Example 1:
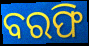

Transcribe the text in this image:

ବରଫି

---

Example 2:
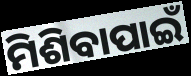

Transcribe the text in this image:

ମିଶିବାପାଇଁ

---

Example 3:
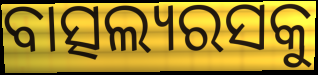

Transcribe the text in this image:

ବାତ୍ସଲ୍ୟରସକୁ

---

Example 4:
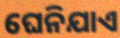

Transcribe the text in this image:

ଘେନିଯାଏ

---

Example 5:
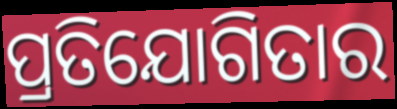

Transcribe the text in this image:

ପ୍ରତିଯୋଗିତାର